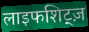
लाइफशिट्ज़